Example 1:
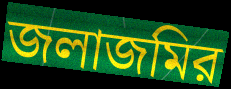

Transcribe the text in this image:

জলাজমির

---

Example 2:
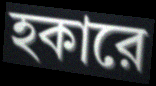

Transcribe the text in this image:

হকারে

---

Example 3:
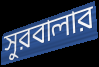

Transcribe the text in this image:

সুরবালার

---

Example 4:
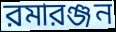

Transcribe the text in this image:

রমারঞ্জন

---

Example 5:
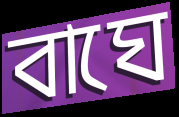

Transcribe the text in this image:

বাঘে